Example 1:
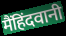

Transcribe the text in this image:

मैंहिंदवानी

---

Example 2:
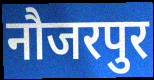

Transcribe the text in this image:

नौजरपुर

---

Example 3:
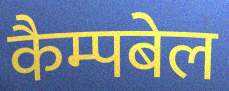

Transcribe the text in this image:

कैम्पबेल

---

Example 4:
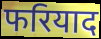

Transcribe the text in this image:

फरियाद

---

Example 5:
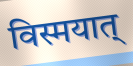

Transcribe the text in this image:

विस्मयात्